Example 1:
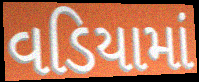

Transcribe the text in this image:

વડિયામાં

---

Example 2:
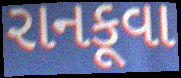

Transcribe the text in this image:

રાનકૂવા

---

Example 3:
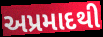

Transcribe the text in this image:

અપ્રમાદથી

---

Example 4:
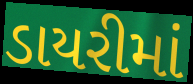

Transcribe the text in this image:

ડાયરીમાં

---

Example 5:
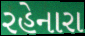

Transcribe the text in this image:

રહેનારા